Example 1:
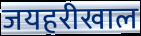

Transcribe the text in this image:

जयहरीखाल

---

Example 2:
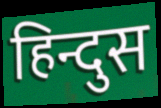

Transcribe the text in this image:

हिन्दुस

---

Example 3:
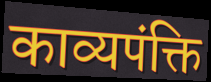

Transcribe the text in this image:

काव्यपंक्ति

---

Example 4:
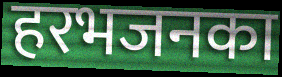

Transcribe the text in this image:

हरभजनका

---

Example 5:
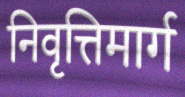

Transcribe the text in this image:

निवृत्तिमार्ग